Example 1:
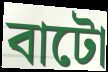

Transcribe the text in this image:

বাটো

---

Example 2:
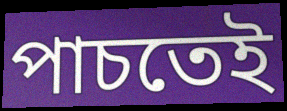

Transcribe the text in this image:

পাচতেই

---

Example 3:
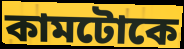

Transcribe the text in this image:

কামটোকে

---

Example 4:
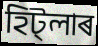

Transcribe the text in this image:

হিট্‌লাৰ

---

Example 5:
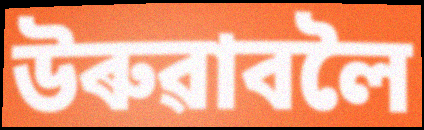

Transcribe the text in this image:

উৰুৱাবলৈ